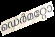
ഡെർമറ്റോ